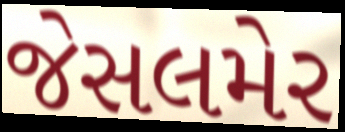
જેસલમેર